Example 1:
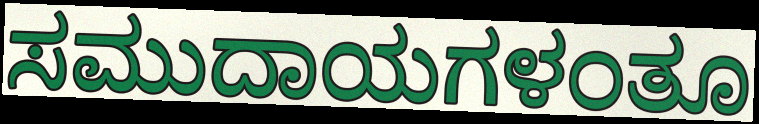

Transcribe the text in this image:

ಸಮುದಾಯಗಳಂತೂ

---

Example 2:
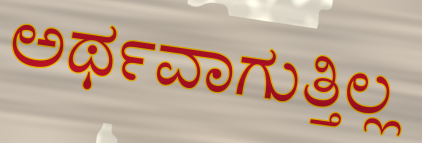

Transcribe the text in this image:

ಅರ್ಥವಾಗುತ್ತಿಲ್ಲ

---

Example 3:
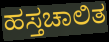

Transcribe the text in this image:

ಹಸ್ತಚಾಲಿತ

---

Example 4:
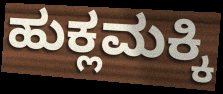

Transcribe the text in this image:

ಹುಕ್ಲಮಕ್ಕಿ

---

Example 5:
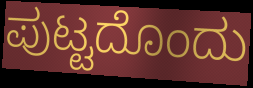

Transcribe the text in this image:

ಪುಟ್ಟದೊಂದು